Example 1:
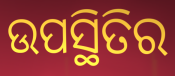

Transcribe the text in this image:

ଉପସ୍ଥିତିର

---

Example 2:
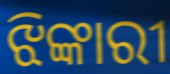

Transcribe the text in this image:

ଝିଙ୍କାରୀ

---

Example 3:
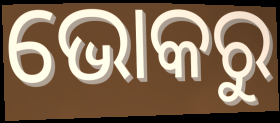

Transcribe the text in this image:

ଭୋକରୁ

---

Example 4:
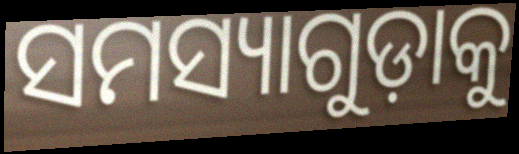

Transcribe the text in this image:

ସମସ୍ୟାଗୁଡ଼ାକୁ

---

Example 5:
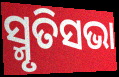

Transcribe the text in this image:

ସ୍ମୃତିସଭା